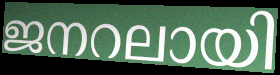
ജനറലായി